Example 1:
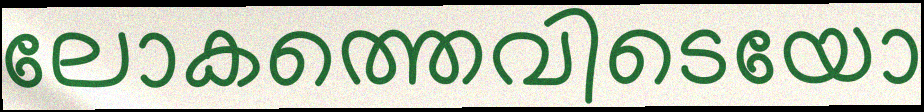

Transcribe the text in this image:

ലോകത്തെവിടെയോ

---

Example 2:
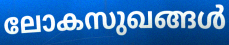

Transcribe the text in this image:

ലോകസുഖങ്ങൾ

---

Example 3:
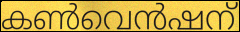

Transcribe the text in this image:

കൺവെൻഷന്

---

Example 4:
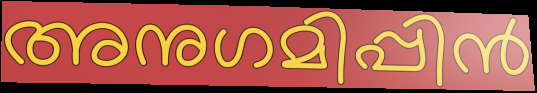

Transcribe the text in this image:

അനുഗമിപ്പിൻ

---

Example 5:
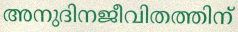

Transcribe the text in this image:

അനുദിനജീവിതത്തിന്